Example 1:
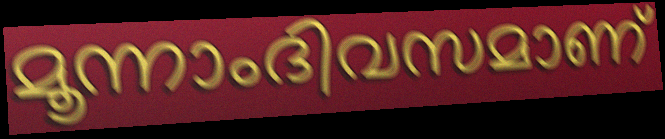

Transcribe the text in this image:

മൂന്നാംദിവസമാണ്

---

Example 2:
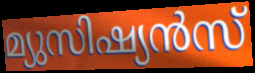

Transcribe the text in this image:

മ്യുസിഷ്യൻസ്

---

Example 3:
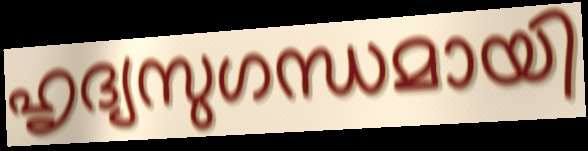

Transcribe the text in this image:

ഹൃദ്യസുഗന്ധമായി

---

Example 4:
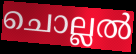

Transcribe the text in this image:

ചൊല്ലൽ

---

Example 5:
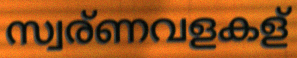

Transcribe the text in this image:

സ്വര്ണവളകള്